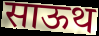
साऊथ